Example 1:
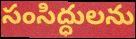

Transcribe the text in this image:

సంసిద్ధులను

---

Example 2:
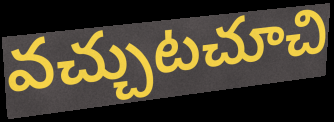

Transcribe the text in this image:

వచ్చుటచూచి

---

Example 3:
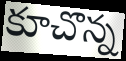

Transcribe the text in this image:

కూచొన్న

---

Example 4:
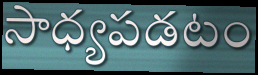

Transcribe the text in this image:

సాధ్యపడటం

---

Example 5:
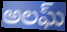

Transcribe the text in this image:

అలఘ్